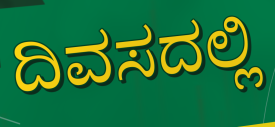
ದಿವಸದಲ್ಲಿ